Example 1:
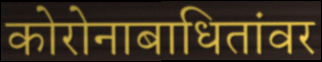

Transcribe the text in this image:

कोरोनाबाधितांवर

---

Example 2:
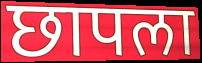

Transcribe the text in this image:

छापला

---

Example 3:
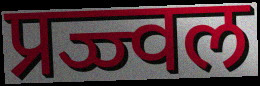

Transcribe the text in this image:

प्रज्ज्वल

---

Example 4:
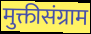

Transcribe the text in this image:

मुक्तीसंग्राम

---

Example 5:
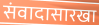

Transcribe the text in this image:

संवादासारखा